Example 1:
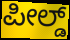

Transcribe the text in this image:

ಪೀಲ್ಡ್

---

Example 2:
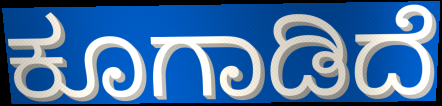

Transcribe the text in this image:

ಕೂಗಾಡಿದೆ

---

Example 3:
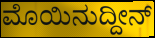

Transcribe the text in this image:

ಮೊಯಿನುದ್ದೀನ್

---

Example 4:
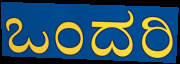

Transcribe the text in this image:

ಒಂದರಿ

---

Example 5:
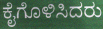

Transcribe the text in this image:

ಕೈಗೊಳಿಸಿದರು